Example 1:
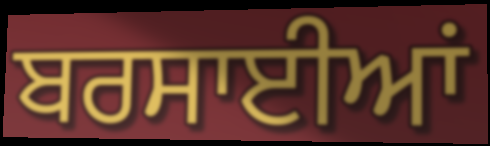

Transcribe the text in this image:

ਬਰਸਾਈਆਂ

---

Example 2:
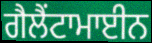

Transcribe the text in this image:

ਗੈਲੈਂਟਾਮਾਈਨ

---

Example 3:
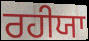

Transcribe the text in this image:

ਰਹੀਯਾ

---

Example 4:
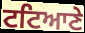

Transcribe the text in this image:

ਟਟਿਆਣੇ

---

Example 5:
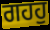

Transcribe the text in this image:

ਗਹਹੁ